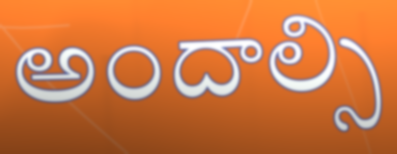
అందాల్సి